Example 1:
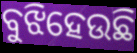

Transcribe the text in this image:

ବୁଝିହେଉଛି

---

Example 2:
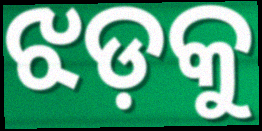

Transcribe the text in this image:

ଝଡ଼କୁ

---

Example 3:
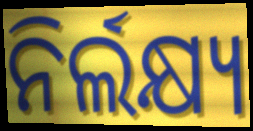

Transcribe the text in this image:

ନିର୍ଲକ୍ଷ୍ୟ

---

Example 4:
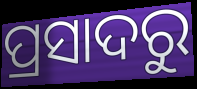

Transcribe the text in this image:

ପ୍ରସାଦରୁ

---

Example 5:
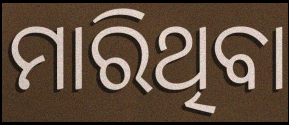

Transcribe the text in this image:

ମାରିଥିବା